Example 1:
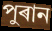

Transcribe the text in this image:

পুৰান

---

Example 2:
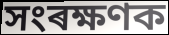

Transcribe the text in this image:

সংৰক্ষণক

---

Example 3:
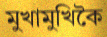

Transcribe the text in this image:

মুখামুখিকৈ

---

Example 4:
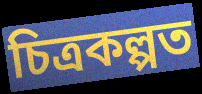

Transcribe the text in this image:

চিত্ৰকল্পত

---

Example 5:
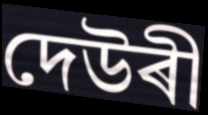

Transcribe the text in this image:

দেউৰী